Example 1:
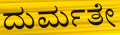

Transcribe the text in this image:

ದುರ್ಮತೇ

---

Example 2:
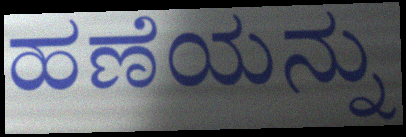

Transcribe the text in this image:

ಹಣೆಯನ್ನು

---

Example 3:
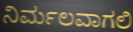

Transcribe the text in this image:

ನಿರ್ಮಲವಾಗಲಿ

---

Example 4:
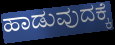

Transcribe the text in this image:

ಹಾಡುವುದಕ್ಕೆ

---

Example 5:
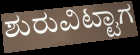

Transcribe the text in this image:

ಶುರುವಿಟ್ಟಾಗ